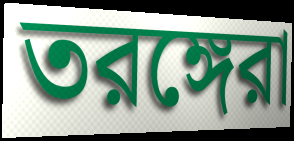
তরঙ্গেরা